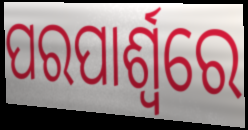
ପରପାର୍ଶ୍ୱରେ